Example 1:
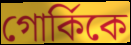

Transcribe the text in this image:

গোর্কিকে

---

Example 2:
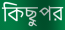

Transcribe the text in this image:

কিছুপর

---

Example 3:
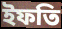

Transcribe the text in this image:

ইফতি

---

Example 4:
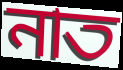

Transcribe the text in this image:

নাত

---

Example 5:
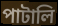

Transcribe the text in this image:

পাটালি